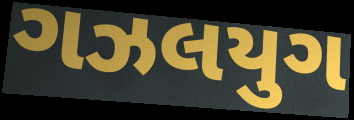
ગઝલયુગ